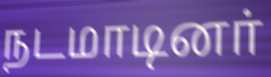
நடமாடினர்